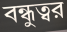
বন্ধুত্বর